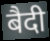
बैदी